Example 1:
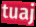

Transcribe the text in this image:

tuaj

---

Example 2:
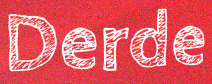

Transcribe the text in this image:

Derde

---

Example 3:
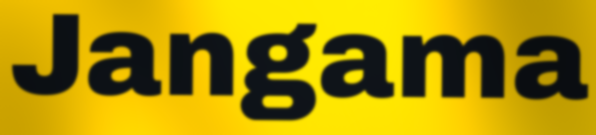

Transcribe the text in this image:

Jangama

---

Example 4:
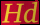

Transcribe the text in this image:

Hd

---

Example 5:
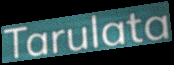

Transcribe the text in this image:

Tarulata